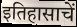
इतिहासाचें